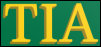
TIA